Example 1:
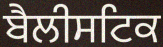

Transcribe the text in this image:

ਬੈਲੀਸਟਿਕ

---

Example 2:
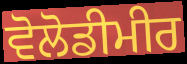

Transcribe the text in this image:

ਵੋਲੋਡੀਮੀਰ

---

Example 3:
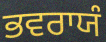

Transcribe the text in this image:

ਭਵਰਾਯੰ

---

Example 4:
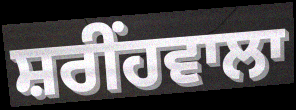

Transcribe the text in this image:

ਸ਼ਰੀਂਹਵਾਲਾ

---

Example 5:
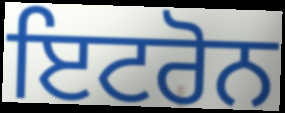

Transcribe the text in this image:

ਇਟਰੋਨ